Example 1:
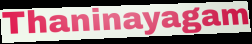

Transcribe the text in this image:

Thaninayagam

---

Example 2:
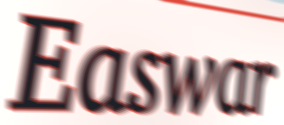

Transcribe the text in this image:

Easwar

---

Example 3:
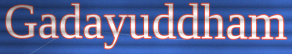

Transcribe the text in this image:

Gadayuddham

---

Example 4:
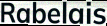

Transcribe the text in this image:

Rabelais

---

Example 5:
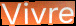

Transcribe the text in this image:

Vivre